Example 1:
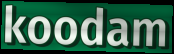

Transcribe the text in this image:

koodam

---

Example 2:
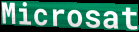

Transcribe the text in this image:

Microsat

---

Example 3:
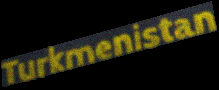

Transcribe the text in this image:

Turkmenistan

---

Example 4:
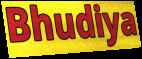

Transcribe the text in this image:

Bhudiya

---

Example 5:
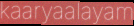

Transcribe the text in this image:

kaaryaalayam